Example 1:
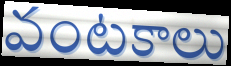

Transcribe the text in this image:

వంటకాలు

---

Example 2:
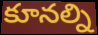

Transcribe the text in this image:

కూనల్ని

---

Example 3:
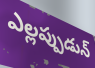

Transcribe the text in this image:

ఎల్లప్పుడున్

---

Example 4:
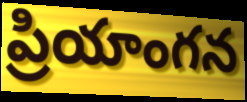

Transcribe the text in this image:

ప్రియాంగన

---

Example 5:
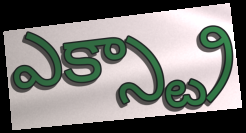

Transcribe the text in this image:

ఎక్స్ట్రా